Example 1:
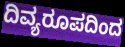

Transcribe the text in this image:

ದಿವ್ಯರೂಪದಿಂದ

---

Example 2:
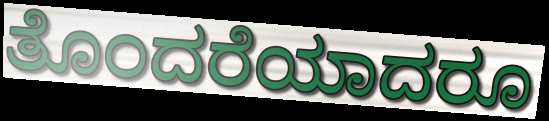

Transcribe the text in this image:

ತೊಂದರೆಯಾದರೂ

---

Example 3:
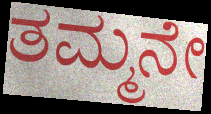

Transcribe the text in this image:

ತಮ್ಮನೇ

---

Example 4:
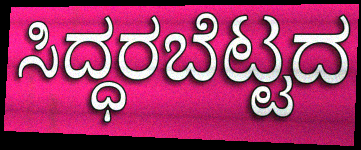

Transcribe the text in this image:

ಸಿದ್ಧರಬೆಟ್ಟದ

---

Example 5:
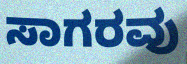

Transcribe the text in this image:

ಸಾಗರವು